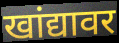
खांद्यावर